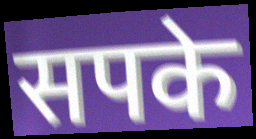
सपके